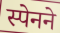
स्पेनने